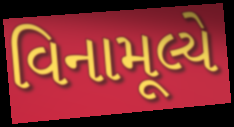
વિનામૂલ્યે